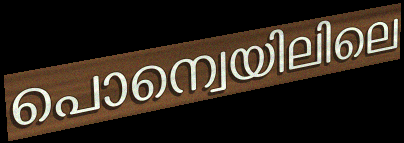
പൊന്വെയിലിലെ